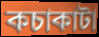
কচাকাটা